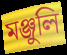
মঞ্জুলি